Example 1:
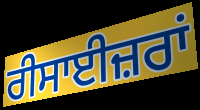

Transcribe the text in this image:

ਰੀਸਾਈਜ਼ਰਾਂ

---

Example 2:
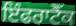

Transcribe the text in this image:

ਇੰਫਰਾਟੈੱਕ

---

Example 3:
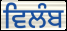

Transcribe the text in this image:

ਵਿਲੰਬ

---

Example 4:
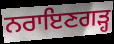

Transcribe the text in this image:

ਨਰਾਇਣਗੜ੍ਹ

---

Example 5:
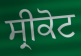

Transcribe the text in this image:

ਸ੍ਰੀਕੋਟ